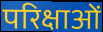
परिक्षाओं